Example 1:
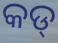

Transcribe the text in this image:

କଡ୍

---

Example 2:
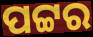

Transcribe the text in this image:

ପଟ୍ଟର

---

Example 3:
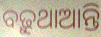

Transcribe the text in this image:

ବଢ଼ୁଥାଆନ୍ତି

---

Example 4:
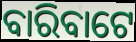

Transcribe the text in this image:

ବାରିବାଟେ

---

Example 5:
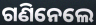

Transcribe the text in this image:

ଗଣିନେଲେ